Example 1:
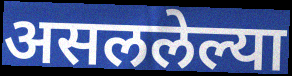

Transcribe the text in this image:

असललेल्या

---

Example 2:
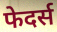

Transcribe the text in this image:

फेदर्स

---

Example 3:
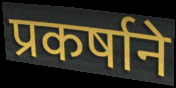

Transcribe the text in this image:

प्रकर्षाने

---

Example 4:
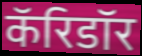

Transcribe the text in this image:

कॅरिडॉर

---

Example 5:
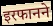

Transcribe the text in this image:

इरफानने